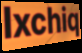
Ixchiq